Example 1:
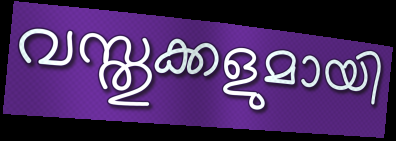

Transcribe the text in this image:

വസ്തുക്കളുമായി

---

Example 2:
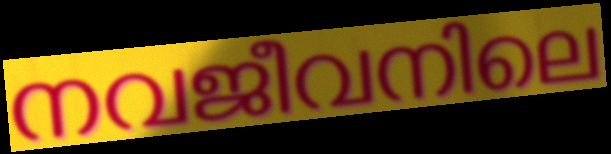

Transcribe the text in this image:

നവജീവനിലെ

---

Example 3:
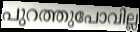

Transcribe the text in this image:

പുറത്തുപോവില്ല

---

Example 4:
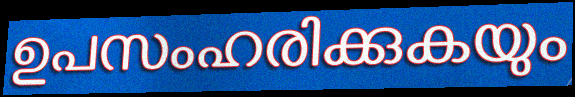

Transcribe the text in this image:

ഉപസംഹരിക്കുകയും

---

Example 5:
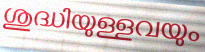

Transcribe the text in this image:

ശുദ്ധിയുള്ളവയും